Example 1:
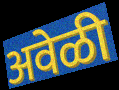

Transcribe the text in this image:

अवेळी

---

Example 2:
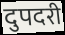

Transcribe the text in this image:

दुपदरी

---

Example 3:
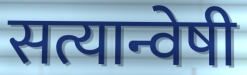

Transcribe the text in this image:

सत्यान्वेषी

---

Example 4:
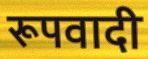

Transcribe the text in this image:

रूपवादी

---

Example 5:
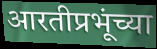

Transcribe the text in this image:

आरतीप्रभूंच्या